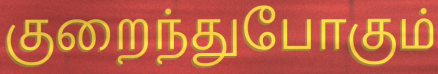
குறைந்துபோகும்